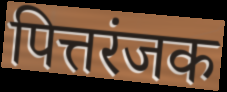
पित्तरंजक